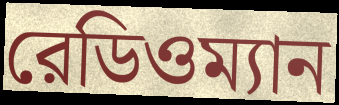
রেডিওম্যান